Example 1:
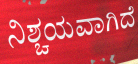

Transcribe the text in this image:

ನಿಶ್ಚಯವಾಗಿದೆ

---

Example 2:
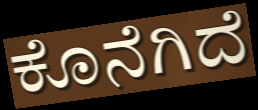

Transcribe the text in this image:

ಕೊನೆಗಿದೆ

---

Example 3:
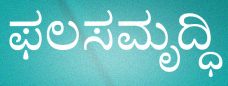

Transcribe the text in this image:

ಫಲಸಮೃದ್ಧಿ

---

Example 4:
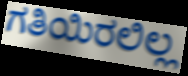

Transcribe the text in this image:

ಗತಿಯಿರಲಿಲ್ಲ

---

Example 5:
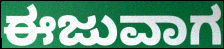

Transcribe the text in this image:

ಈಜುವಾಗ